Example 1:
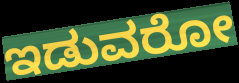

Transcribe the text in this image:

ಇಡುವರೋ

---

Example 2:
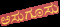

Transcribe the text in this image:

ಅಸುಗೂಸು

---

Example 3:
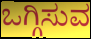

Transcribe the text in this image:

ಒಗ್ಗಿಸುವ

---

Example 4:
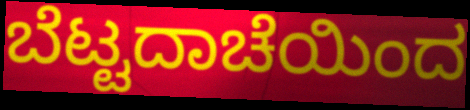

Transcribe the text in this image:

ಬೆಟ್ಟದಾಚೆಯಿಂದ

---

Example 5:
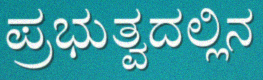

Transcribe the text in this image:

ಪ್ರಭುತ್ವದಲ್ಲಿನ